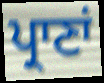
ਪ੍ਰਾਣਾਂ